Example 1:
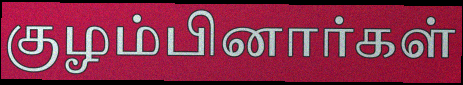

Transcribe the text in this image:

குழம்பினார்கள்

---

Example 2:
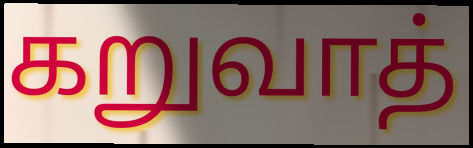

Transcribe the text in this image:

கறுவாத்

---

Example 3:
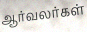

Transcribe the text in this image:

ஆர்வலர்கள்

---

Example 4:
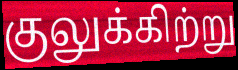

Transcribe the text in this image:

குலுக்கிற்று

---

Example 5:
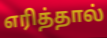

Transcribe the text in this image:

எரித்தால்